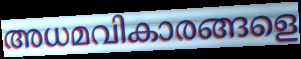
അധമവികാരങ്ങളെ